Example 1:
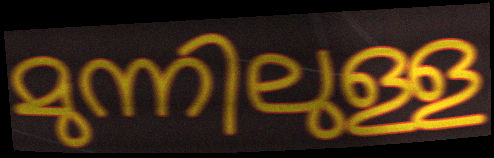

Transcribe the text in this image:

മുന്നിലുള്ള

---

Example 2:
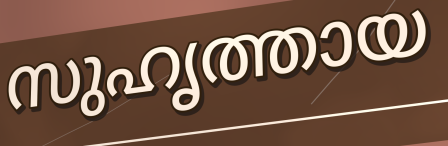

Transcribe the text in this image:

സുഹൃത്തായ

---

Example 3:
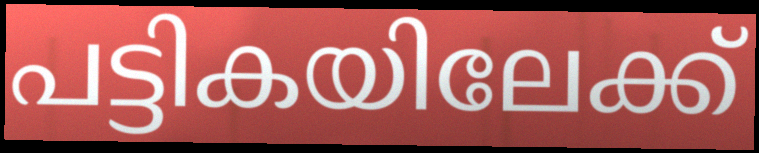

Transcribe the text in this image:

പട്ടികയിലേക്ക്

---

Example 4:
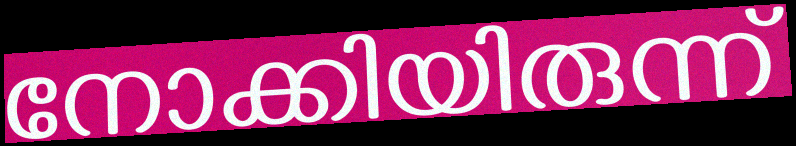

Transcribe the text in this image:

നോക്കിയിരുന്ന്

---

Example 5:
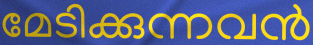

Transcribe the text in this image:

മേടിക്കുന്നവൻ